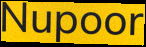
Nupoor